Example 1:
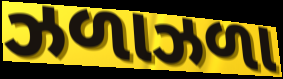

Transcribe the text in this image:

ઝળાઝળા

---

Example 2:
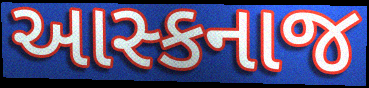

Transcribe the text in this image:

આસ્કનાજ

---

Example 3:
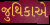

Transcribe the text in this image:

જુથિકાએ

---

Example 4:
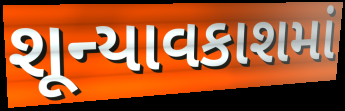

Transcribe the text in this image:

શૂન્યાવકાશમાં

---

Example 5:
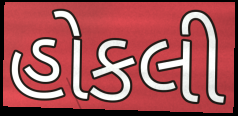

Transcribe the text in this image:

હોકલી